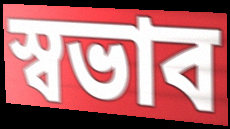
স্বভাব